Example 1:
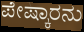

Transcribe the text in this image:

ಪೇಷ್ಕಾರನು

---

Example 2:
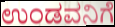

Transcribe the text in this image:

ಉಂಡವನಿಗೆ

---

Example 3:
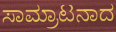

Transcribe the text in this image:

ಸಾಮ್ರಾಟನಾದ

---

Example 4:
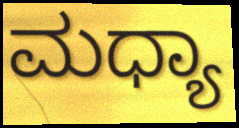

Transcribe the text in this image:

ಮಧ್ಯಾ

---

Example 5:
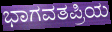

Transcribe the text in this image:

ಭಾಗವತಪ್ರಿಯ